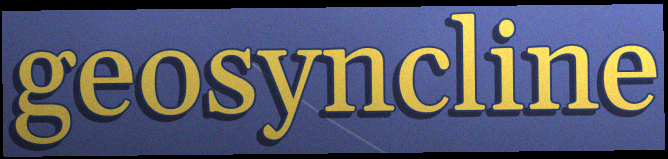
geosyncline